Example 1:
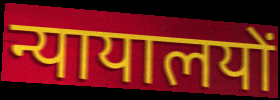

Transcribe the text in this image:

न्यायालयों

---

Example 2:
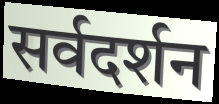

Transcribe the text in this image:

सर्वदर्शन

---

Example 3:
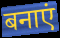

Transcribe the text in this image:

बनाएं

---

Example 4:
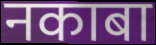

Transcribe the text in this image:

नकाबा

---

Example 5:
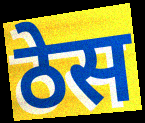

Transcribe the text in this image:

ठेस